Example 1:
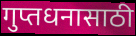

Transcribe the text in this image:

गुप्तधनासाठी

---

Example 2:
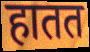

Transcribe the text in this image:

हातत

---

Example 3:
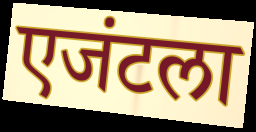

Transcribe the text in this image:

एजंटला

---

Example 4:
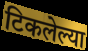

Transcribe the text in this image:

टिकलेल्या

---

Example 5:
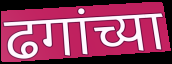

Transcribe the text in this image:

ढगांच्या